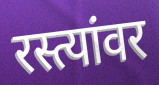
रस्त्यांवर